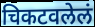
चिकटवलेलं